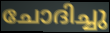
ചോദിച്ചു